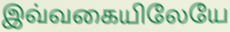
இவ்வகையிலேயே